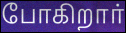
போகிறார்